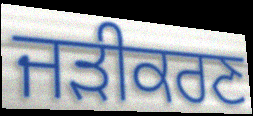
ਜੜੀਕਰਣ